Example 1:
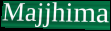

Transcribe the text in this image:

Majjhima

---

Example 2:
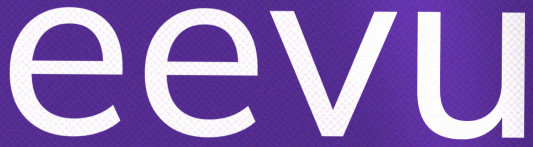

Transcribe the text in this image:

eevu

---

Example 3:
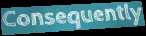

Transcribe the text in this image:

Consequently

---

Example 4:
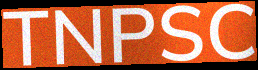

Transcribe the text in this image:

TNPSC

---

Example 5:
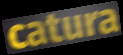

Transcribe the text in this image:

catura